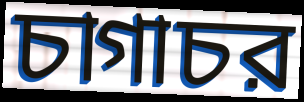
চাগাচর